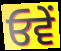
ਓਵੇਂ